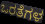
ಒರತೆಗಳ